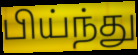
பிய்ந்து